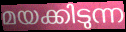
മയക്കിടുന്ന